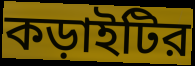
কড়াইটির